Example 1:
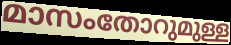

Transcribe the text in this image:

മാസംതോറുമുള്ള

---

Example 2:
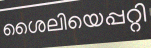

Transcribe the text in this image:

ശൈലിയെപ്പറ്റി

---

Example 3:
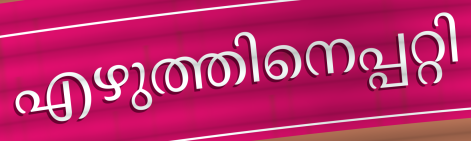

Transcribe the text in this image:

എഴുത്തിനെപ്പറ്റി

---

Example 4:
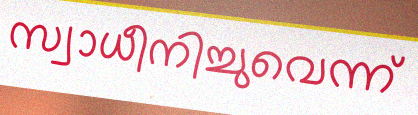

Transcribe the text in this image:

സ്വാധീനിച്ചുവെന്ന്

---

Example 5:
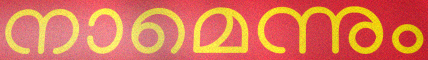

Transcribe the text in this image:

നാമെന്നും